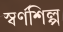
স্বর্ণশিল্প